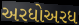
અરધોઅરધ